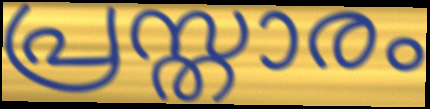
പ്രസ്താരം